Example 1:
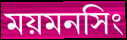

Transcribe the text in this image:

ময়মনসিং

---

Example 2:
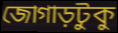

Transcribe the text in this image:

জোগাড়টুকু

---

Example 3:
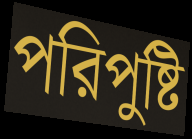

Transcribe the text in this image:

পরিপুষ্টি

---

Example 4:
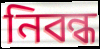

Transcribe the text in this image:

নিবন্ধ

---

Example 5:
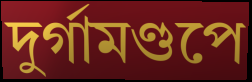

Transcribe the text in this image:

দুর্গামণ্ডপে